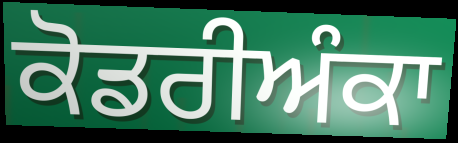
ਕੋਡਰੀਅੰਕਾ